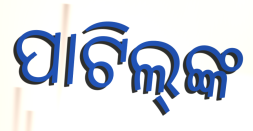
ପାଟିଲ୍‌ଙ୍କ